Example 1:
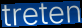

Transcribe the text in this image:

treten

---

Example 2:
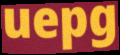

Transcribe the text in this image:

uepg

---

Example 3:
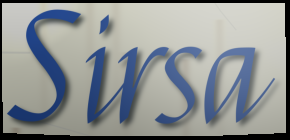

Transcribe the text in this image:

Sirsa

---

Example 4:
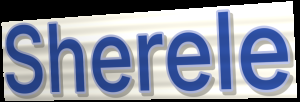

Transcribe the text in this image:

Sherele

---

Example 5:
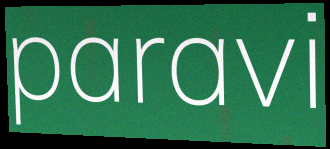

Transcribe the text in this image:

paravi